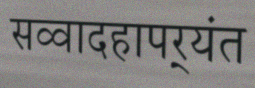
सव्वादहापर्यंत